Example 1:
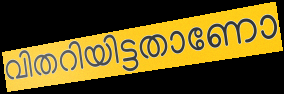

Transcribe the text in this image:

വിതറിയിട്ടതാണോ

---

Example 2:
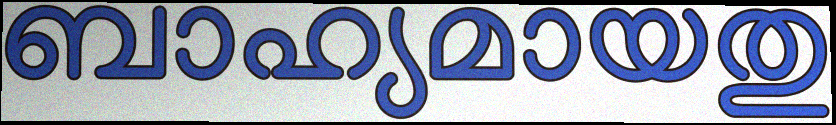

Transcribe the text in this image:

ബാഹ്യമായതു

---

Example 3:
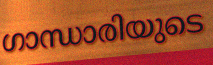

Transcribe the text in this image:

ഗാന്ധാരിയുടെ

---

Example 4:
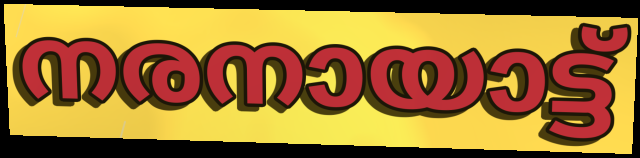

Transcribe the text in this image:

നരനായാട്ട്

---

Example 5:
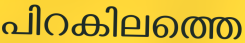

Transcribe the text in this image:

പിറകിലത്തെ